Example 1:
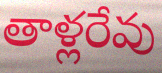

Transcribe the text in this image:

తాళ్లరేవు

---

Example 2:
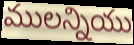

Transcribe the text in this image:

ములన్నియు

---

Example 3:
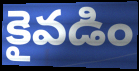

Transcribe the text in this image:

కైవడిం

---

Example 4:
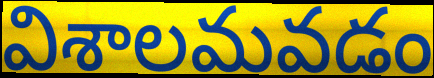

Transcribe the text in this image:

విశాలమవడం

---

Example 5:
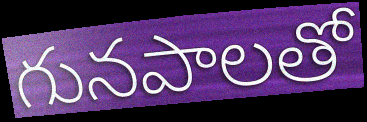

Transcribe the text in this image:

గునపాలతో